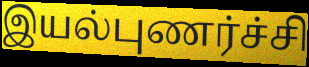
இயல்புணர்ச்சி